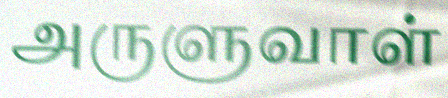
அருளுவாள்